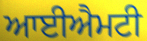
ਆਈਐਮਟੀ